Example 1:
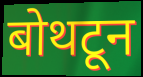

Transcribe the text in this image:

बोथटून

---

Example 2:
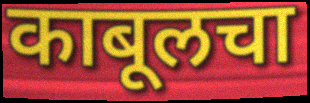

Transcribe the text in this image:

काबूलचा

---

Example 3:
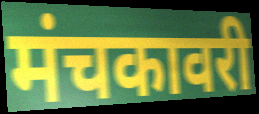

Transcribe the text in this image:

मंचकावरी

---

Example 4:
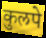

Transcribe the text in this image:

कुलपे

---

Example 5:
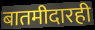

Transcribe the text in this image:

बातमीदारही